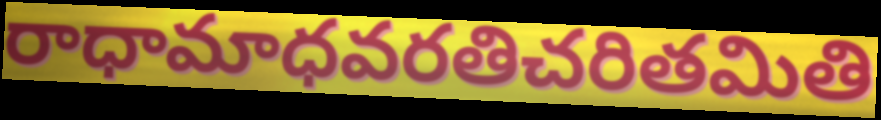
రాధామాధవరతిచరితమితి